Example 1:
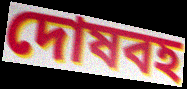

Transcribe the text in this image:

দোষবহ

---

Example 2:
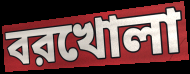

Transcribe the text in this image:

বরখোলা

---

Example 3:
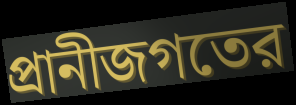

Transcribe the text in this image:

প্রানীজগতের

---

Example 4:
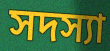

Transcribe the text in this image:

সদস্যা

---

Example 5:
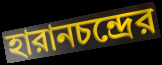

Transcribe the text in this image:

হারানচন্দ্রের